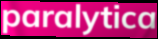
paralytica